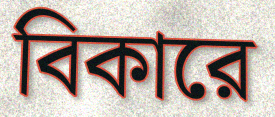
বিকারে